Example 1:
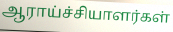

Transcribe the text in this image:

ஆராய்ச்சியாளர்கள்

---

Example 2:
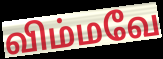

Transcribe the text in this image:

விம்மவே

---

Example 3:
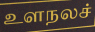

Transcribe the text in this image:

உளநலச்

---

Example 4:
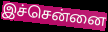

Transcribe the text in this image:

இச்சென்னை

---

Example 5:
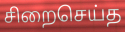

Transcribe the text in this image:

சிறைசெய்த